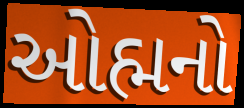
ઓહ્મનો